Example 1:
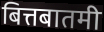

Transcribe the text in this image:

बित्तबातमी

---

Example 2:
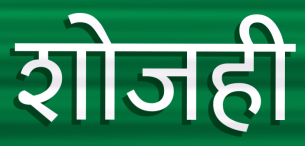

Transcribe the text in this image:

शोजही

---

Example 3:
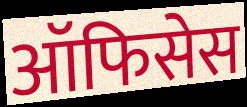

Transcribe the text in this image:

ऑफिसेस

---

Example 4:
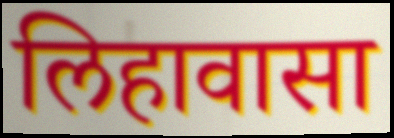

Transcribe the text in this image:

लिहावासा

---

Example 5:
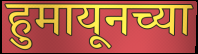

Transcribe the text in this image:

हुमायूनच्या